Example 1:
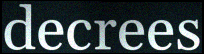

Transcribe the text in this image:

decrees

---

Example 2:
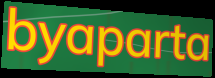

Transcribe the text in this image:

byaparta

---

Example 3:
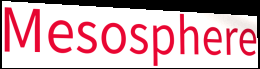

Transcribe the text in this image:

Mesosphere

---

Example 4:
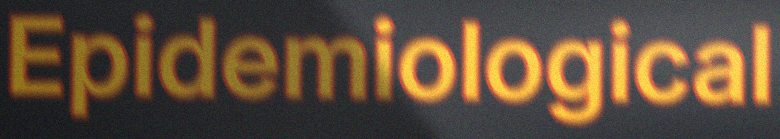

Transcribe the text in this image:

Epidemiological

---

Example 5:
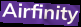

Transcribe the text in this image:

Airfinity